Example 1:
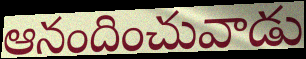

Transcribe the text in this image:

ఆనందించువాడు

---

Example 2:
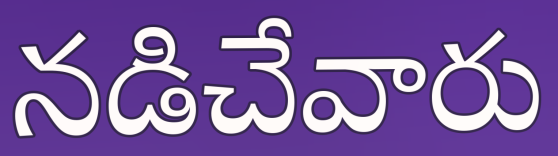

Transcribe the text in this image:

నడిచేవారు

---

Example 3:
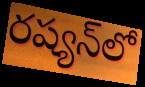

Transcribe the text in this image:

రష్యన్‌లో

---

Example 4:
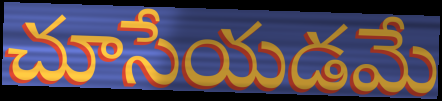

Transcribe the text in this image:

చూసేయడమే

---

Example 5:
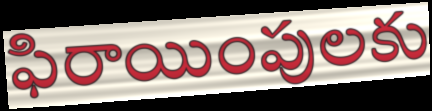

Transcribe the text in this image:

ఫిరాయింపులకు